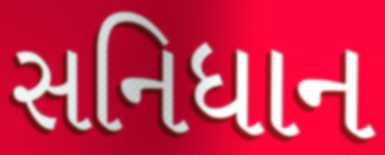
સનિધાન